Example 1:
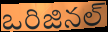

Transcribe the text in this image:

ఒరిజినల్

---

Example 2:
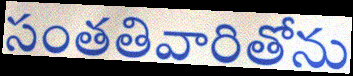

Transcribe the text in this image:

సంతతివారితోను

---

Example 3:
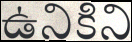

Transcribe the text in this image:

ఉనికిని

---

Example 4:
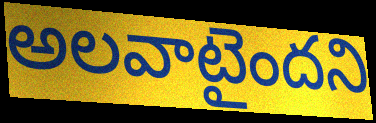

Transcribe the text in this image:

అలవాటైందని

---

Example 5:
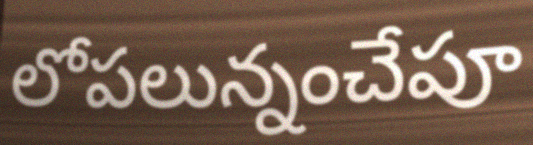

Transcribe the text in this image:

లోపలున్నంచేపూ